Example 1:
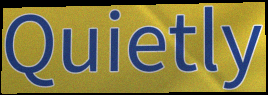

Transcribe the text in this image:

Quietly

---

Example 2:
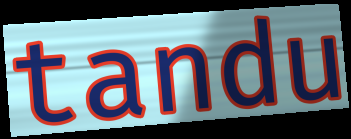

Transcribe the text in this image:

tandu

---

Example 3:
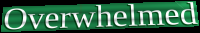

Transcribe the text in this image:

Overwhelmed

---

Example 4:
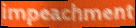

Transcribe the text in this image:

impeachment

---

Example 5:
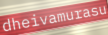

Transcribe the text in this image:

dheivamurasu